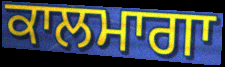
ਕਾਲਮਾਗਾ